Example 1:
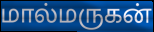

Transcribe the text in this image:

மால்மருகன்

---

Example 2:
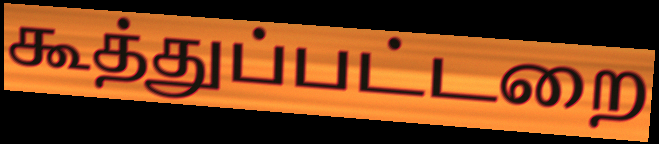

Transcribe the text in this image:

கூத்துப்பட்டறை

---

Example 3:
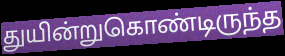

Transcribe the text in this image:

துயின்றுகொண்டிருந்த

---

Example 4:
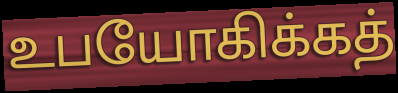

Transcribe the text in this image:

உபயோகிக்கத்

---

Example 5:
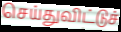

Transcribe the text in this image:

செய்துவிட்டுச்